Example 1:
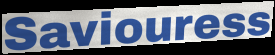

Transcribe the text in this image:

Saviouress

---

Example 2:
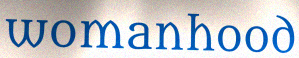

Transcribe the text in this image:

womanhood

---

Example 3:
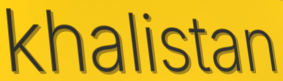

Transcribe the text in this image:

khalistan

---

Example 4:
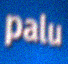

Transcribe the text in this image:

palu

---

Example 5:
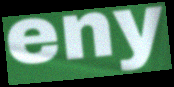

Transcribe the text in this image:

eny